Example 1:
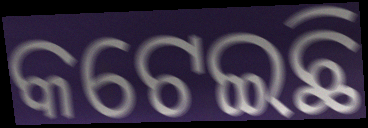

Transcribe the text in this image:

କଟେଇଛି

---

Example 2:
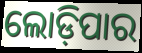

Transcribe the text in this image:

ଲୋଡ଼ିପାର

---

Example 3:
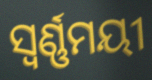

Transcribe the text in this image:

ସ୍ୱର୍ଣ୍ଣମୟୀ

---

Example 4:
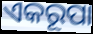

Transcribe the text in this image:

ଏକରୂପା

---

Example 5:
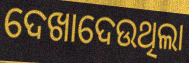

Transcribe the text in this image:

ଦେଖାଦେଉଥିଲା